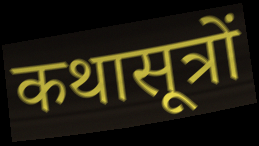
कथासूत्रों